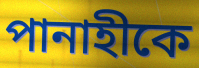
পানাহীকে